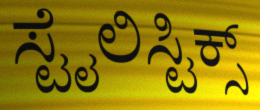
ಸ್ಟೈಲಿಸ್ಟಿಕ್ಸ್